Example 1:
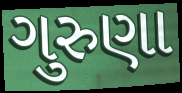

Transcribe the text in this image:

ગુરુણા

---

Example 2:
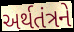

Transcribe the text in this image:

અર્થતંત્રને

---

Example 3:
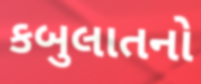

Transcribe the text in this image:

કબુલાતનો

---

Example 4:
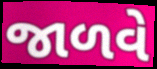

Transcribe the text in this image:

જાળવે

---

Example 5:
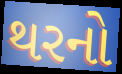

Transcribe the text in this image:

થરનો